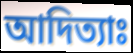
আদিত্যাঃ